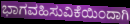
ಭಾಗವಹಿಸುವಿಕೆಯಿಂದಾಗಿ